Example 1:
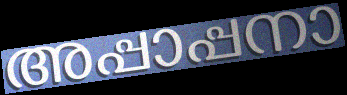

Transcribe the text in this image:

അപ്പാപ്പനാ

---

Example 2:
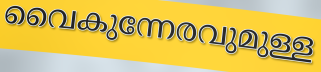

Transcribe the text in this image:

വൈകുന്നേരവുമുള്ള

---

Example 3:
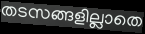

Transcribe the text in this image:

തടസങ്ങളില്ലാതെ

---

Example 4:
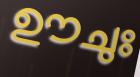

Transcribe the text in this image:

ഊചുഃ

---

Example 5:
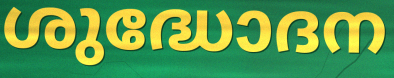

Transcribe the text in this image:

ശുദ്ധോദന